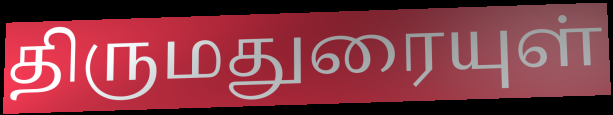
திருமதுரையுள்